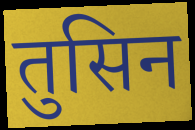
तुसिन